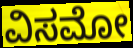
ವಿಸಮೋ